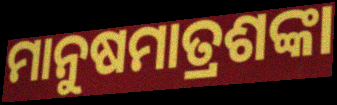
ମାନୁଷମାତ୍ରଶଙ୍କା